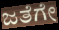
ಜತೆಗೇ